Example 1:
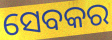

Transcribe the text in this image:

ସେବକର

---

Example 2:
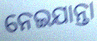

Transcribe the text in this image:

ନେଇଯାନ୍ତା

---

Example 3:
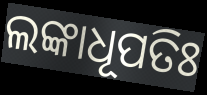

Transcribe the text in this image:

ଲଙ୍କାଧୂପତିଃ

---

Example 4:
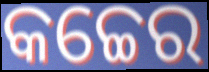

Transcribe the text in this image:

କଚ୍ଚେର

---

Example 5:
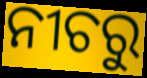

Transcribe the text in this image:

ନୀଚରୁ